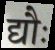
द्यौः